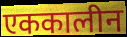
एककालीन